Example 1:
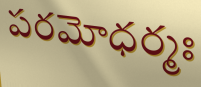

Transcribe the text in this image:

పరమోధర్మః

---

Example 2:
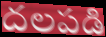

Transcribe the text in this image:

దలపడి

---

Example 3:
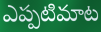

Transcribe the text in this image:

ఎప్పటిమాట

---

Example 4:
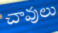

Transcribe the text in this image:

చావులు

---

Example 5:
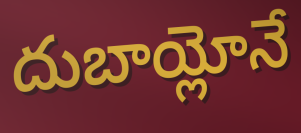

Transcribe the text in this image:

దుబాయ్లోనే